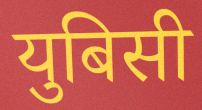
युबिसी